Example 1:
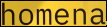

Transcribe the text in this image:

homena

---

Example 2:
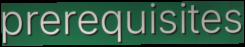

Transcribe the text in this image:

prerequisites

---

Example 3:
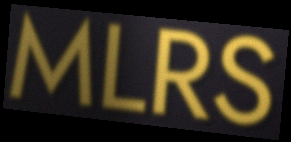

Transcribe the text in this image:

MLRS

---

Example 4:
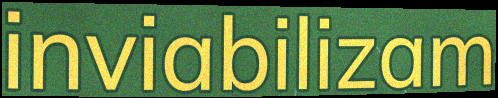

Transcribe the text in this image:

inviabilizam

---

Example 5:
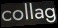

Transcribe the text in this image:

collag